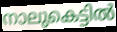
നാലുകെട്ടിൽ